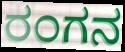
ರಂಗನ